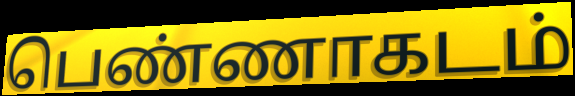
பெண்ணாகடம்